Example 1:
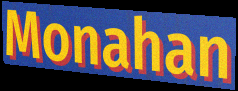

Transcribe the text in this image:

Monahan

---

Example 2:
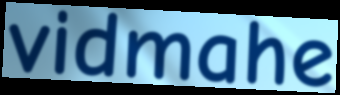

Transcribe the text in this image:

vidmahe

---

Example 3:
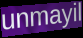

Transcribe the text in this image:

unmayil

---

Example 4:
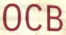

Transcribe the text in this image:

OCB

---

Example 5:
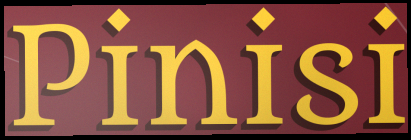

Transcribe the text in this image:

Pinisi